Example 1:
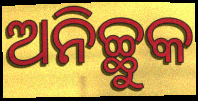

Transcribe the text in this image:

ଅନିଚ୍ଛୁକ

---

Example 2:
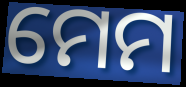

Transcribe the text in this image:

ମେମ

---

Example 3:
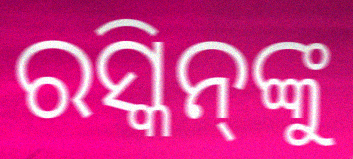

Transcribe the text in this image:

ରସ୍କିନ୍‌ଙ୍କୁ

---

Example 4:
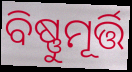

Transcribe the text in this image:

ବିଷ୍ଣୁମୂର୍ତ୍ତି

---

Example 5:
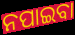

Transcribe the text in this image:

ନପାଇବା